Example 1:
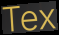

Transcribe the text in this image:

Tex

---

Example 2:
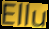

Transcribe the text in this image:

Ellu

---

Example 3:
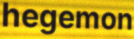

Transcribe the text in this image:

hegemon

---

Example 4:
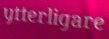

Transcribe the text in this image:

ytterligare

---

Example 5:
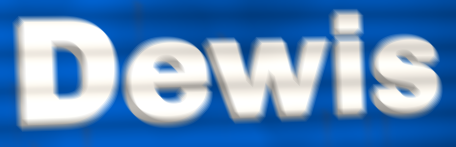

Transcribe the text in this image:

Dewis